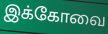
இக்கோவை